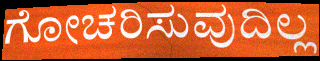
ಗೋಚರಿಸುವುದಿಲ್ಲ